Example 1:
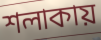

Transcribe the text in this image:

শলাকায়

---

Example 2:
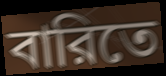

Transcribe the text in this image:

বারিতে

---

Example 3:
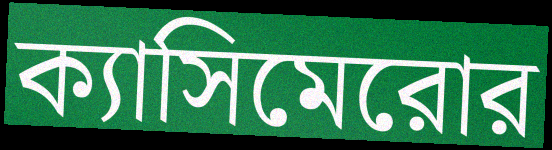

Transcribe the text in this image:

ক্যাসিমেরোর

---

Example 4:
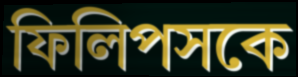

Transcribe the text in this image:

ফিলিপসকে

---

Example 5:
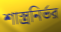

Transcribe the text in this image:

শাস্ত্রনির্ভর